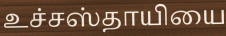
உச்சஸ்தாயியை